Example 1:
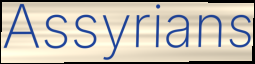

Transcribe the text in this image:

Assyrians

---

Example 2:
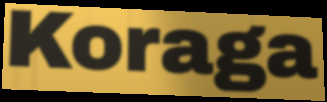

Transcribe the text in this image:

Koraga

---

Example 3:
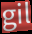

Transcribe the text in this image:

gil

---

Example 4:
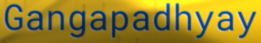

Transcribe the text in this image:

Gangapadhyay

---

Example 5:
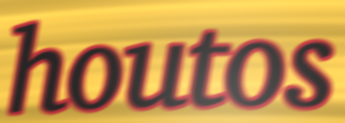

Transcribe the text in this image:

houtos